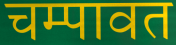
चम्पावत